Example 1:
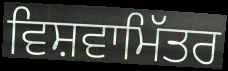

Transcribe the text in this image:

ਵਿਸ਼ਵਾਮਿੱਤਰ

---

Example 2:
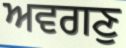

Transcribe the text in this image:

ਅਵਗਣੁ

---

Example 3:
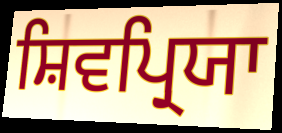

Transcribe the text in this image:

ਸ਼ਿਵਪ੍ਰਿਯਾ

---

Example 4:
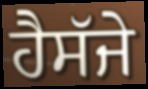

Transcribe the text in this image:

ਹੈਸੱਜੇ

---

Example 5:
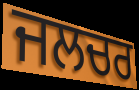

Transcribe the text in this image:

ਜਲਚਰ